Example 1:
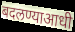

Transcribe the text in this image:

बदलण्याआधी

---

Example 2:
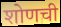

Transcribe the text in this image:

शोणची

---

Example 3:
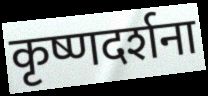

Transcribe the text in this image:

कृष्णदर्शना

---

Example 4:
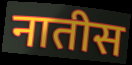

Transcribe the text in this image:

नातीस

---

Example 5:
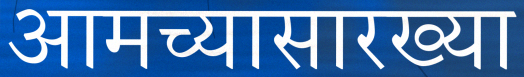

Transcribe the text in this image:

आमच्यासारख्या